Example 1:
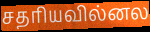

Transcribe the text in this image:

சதரியவில்னல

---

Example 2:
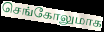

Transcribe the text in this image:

செங்கோலுமாக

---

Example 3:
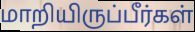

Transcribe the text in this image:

மாறியிருப்பீர்கள்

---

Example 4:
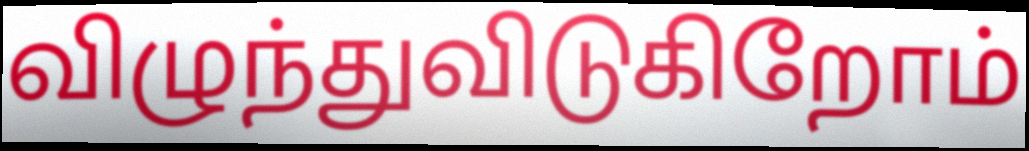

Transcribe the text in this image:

விழுந்துவிடுகிறோம்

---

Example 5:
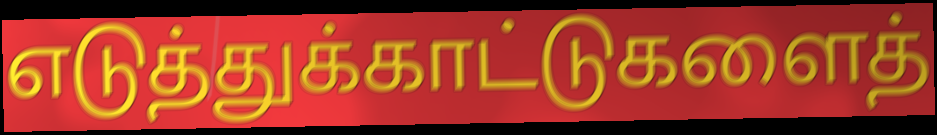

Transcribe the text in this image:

எடுத்துக்காட்டுகளைத்